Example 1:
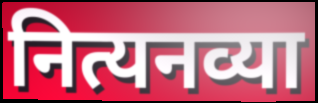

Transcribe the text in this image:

नित्यनव्या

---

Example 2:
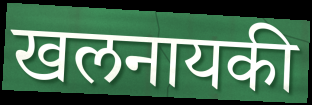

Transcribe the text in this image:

खलनायकी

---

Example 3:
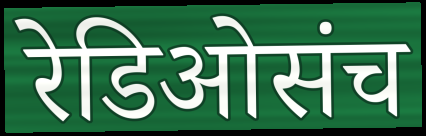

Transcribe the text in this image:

रेडिओसंच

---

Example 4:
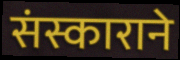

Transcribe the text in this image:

संस्काराने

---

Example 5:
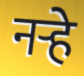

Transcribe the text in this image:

नऱ्हे